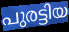
പുരട്ടിയ